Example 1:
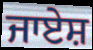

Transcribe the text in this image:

ਜਾਏਸ਼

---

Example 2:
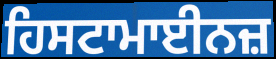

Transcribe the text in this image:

ਹਿਸਟਾਮਾਈਨਜ਼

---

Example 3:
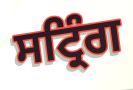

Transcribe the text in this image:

ਸਟ੍ਰਿੰਗ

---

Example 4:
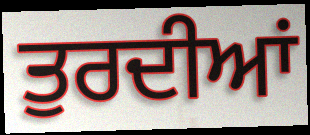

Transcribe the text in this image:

ਤੁਰਦੀਆਂ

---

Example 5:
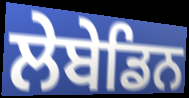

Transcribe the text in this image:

ਲੇਬੇਡਿਨ